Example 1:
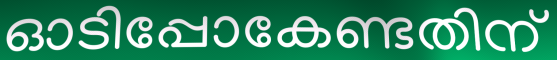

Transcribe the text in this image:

ഓടിപ്പോകേണ്ടതിന്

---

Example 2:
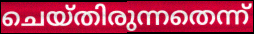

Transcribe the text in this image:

ചെയ്തിരുന്നതെന്ന്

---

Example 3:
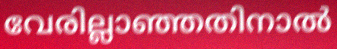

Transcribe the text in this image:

വേരില്ലാഞ്ഞതിനാൽ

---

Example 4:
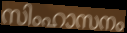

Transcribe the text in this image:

സിംഹാസനം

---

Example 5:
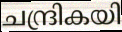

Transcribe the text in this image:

ചന്ദ്രികയി